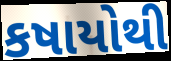
કષાયોથી